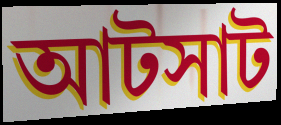
আটসাট